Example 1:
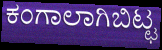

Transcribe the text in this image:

ಕಂಗಾಲಾಗಿಬಿಟ್ಟ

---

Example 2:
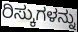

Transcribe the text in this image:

ರಿಸ್ಕುಗಳನ್ನು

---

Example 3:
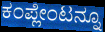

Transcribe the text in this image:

ಕಂಪ್ಲೇಂಟನ್ನೂ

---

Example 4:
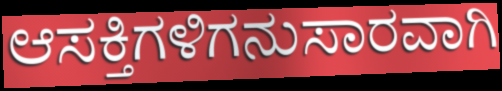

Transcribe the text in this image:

ಆಸಕ್ತಿಗಳಿಗನುಸಾರವಾಗಿ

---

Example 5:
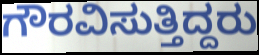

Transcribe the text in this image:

ಗೌರವಿಸುತ್ತಿದ್ದರು